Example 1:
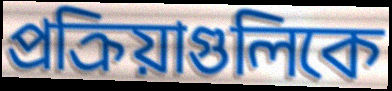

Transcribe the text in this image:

প্রক্রিয়াগুলিকে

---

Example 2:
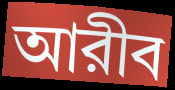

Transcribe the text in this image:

আরীব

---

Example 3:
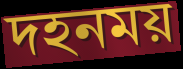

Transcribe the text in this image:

দহনময়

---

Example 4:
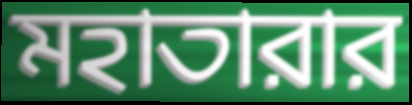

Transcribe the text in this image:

মহাতারার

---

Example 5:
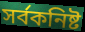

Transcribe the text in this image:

সর্বকনিষ্ট